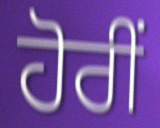
ਹੋਰੀਂ